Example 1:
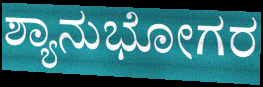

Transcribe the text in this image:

ಶ್ಯಾನುಭೋಗರ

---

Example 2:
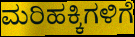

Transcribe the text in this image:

ಮರಿಹಕ್ಕಿಗಳಿಗೆ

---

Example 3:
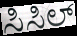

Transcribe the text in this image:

ಸಿಸಿಲ್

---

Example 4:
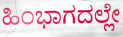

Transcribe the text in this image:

ಹಿಂಭಾಗದಲ್ಲೇ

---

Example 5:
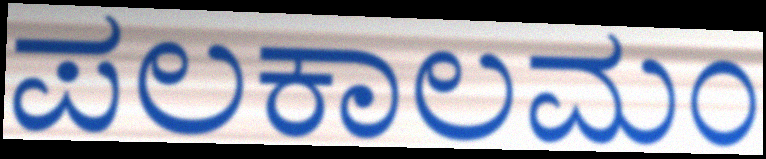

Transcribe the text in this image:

ಪಲಕಾಲಮಂ